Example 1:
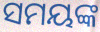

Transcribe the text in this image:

ସମୟଙ୍କ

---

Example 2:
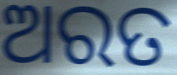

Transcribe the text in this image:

ଅରତ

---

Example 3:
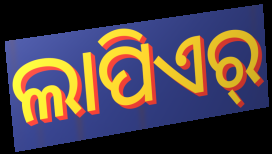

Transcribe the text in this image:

ଲାପିଏର୍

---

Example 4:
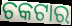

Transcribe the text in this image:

ଚକଟାର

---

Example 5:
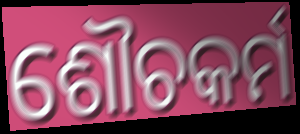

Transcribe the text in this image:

ଶୌଚକର୍ମ